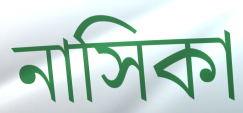
নাসিকা